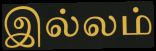
இல்லம்